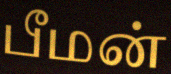
பீமன்